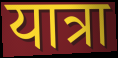
यात्रा